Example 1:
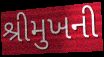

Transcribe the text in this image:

શ્રીમુખની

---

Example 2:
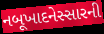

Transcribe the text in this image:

નબૂખાદનેસ્સારની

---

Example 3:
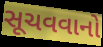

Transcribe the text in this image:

સૂચવવાનો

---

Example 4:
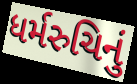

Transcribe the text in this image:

ધર્મરુચિનું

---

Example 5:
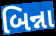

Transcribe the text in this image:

બિન્ના